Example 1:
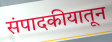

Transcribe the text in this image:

संपादकीयातून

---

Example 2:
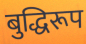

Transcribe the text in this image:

बुद्धिरूप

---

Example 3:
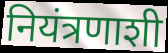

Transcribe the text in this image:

नियंत्रणाशी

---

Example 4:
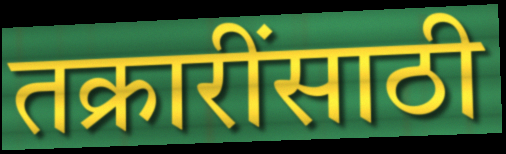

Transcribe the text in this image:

तक्रारींसाठी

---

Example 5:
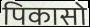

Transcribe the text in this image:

पिकासो